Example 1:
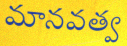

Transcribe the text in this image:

మానవత్వ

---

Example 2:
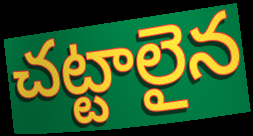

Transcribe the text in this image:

చట్టాలైన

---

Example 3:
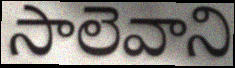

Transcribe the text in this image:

సాలెవాని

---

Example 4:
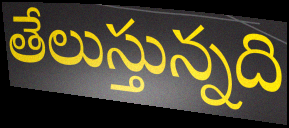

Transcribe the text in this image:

తేలుస్తున్నది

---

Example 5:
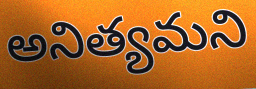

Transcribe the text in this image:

అనిత్యమని